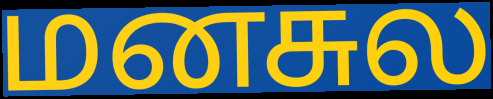
மனசுல